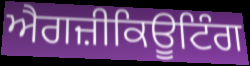
ਐਗਜ਼ੀਕਿਊਟਿੰਗ